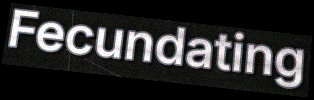
Fecundating